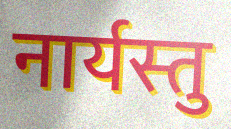
नार्यस्तु